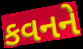
કવનને